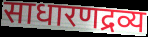
साधारणद्रव्य